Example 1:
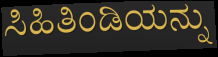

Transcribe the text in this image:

ಸಿಹಿತಿಂಡಿಯನ್ನು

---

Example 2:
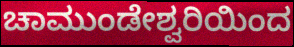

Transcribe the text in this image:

ಚಾಮುಂಡೇಶ್ವರಿಯಿಂದ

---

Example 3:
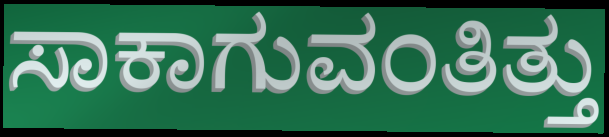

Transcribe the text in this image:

ಸಾಕಾಗುವಂತಿತ್ತು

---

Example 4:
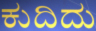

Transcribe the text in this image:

ಕುದಿದು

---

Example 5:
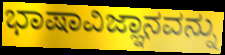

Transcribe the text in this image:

ಭಾಷಾವಿಜ್ಞಾನವನ್ನು